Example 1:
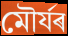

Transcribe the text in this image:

মৌৰ্যৰ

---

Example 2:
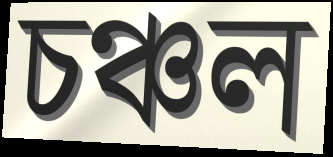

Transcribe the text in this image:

চঞ্চল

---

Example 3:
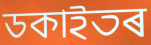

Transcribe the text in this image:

ডকাইতৰ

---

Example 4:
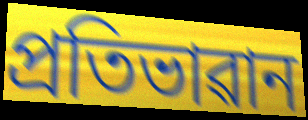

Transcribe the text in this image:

প্ৰতিভাৱান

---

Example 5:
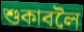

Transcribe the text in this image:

শুকাবলৈ